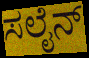
ಸಲೈನ್